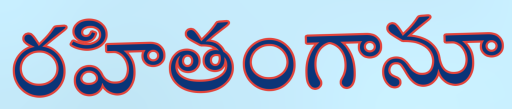
రహితంగానూ